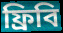
ফ্রিবি